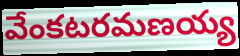
వేంకటరమణయ్య